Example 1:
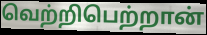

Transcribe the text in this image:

வெற்றிபெற்றான்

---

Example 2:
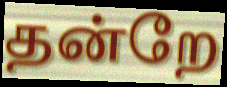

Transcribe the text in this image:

தன்றே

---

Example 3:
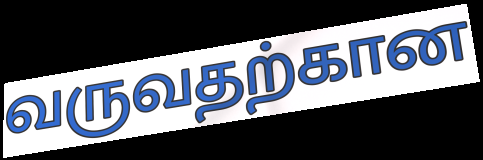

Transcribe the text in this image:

வருவதற்கான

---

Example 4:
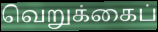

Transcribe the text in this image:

வெறுக்கைப்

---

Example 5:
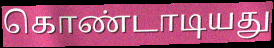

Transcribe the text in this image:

கொண்டாடியது